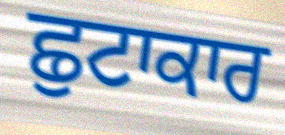
ਛੁਟਾਕਾਰ